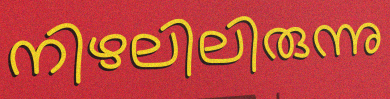
നിഴലിലിരുന്നു